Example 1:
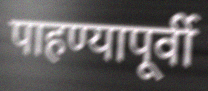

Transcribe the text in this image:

पाहण्यापूर्वी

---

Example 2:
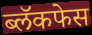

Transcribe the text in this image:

ब्लॅकफेस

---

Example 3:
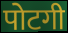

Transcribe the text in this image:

पोटगी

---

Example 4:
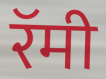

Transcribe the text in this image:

रॅमी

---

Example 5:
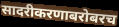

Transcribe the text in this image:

सादरीकरणाबरोबरच